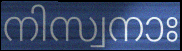
നിസ്വനാഃ